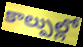
కాల్పుల్లో